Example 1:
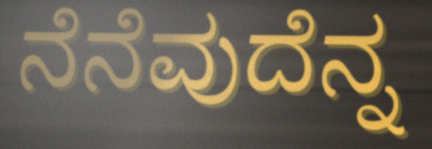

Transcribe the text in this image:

ನೆನೆವುದೆನ್ನ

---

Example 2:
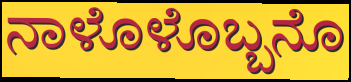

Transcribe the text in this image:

ನಾಳೊಳೊಬ್ಬನೊ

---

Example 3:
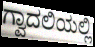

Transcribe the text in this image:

ಗ್ವಾದಲಿಯಲ್ಲಿ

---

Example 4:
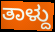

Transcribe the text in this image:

ತಾಳ್ದು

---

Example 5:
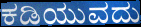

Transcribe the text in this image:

ಕಡಿಯುವದು